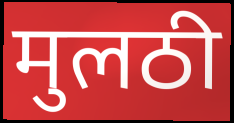
मुलठी